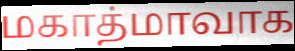
மகாத்மாவாக